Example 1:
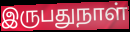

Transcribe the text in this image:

இருபதுநாள்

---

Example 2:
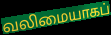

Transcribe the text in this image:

வலிமையாகப்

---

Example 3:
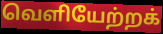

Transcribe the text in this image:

வெளியேற்றக்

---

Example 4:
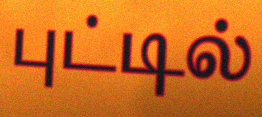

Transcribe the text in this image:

புட்டில்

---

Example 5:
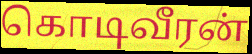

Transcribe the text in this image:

கொடிவீரன்